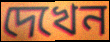
দেখেন